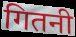
गितनी